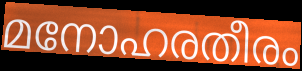
മനോഹരതീരം